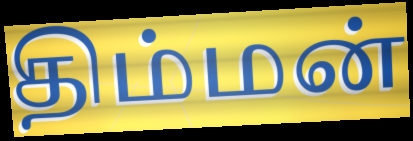
திம்மன்